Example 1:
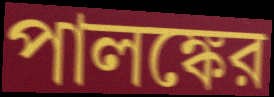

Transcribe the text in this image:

পালঙ্কের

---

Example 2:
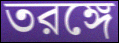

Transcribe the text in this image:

তরঙ্গে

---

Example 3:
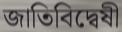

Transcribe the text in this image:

জাতিবিদ্বেষী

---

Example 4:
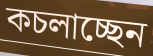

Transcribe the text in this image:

কচলাচ্ছেন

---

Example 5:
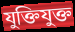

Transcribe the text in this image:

যুক্তিযুক্ত